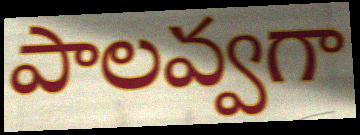
పాలవ్వగా